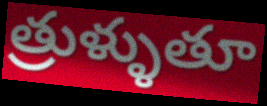
త్రుళ్ళుతూ